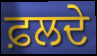
ਫ਼ਲਦੇ